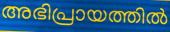
അഭിപ്രായത്തിൽ